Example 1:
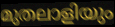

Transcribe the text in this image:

മുതലാളിയും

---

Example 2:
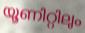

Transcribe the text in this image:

യൂണിറ്റിലും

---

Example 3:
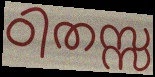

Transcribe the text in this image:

ഠിതസ്സ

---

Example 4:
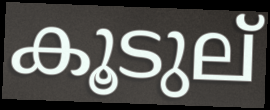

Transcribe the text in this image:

കൂടുല്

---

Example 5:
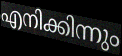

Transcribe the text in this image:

എനിക്കിന്നും